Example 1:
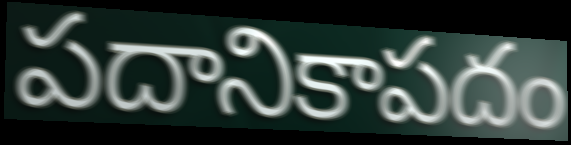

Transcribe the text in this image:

పదానికాపదం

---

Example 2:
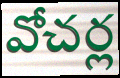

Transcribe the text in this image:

వోచర్ల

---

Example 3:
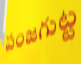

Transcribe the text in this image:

పంజగుట్ట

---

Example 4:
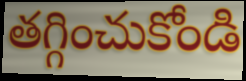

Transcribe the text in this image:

తగ్గించుకోండి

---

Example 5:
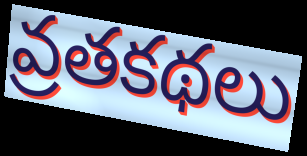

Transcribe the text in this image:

వ్రతకథలు